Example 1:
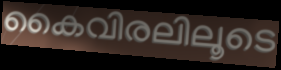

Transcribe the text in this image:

കൈവിരലിലൂടെ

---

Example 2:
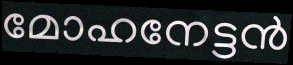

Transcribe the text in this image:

മോഹനേട്ടൻ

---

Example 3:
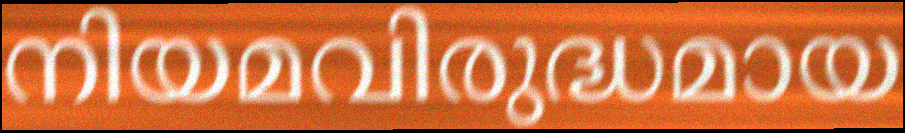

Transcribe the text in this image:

നിയമവിരുദ്ധമായ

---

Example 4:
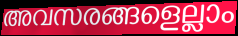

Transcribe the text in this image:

അവസരങ്ങളെല്ലാം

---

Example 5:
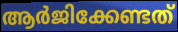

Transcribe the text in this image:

ആർജിക്കേണ്ടത്